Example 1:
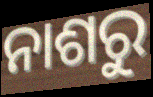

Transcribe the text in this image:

ନାଶରୁ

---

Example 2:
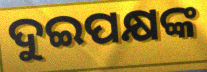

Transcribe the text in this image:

ଦୁଇପକ୍ଷଙ୍କ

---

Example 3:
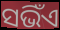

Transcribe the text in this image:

ସଭିଁଏ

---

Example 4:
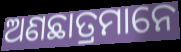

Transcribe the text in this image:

ଅଣଛାତ୍ରମାନେ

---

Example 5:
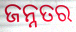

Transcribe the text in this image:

ଜନ୍ନତର